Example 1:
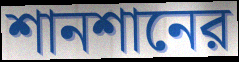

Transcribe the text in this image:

শানশানের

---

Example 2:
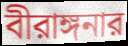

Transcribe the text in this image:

বীরাঙ্গনার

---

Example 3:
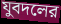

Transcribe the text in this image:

যুবদলের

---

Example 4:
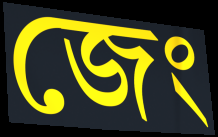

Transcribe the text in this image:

জেং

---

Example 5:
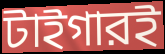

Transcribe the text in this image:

টাইগারই